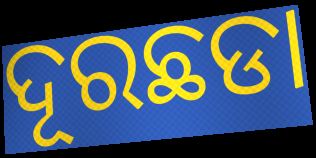
ଦୂରଛଡା